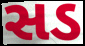
સડ